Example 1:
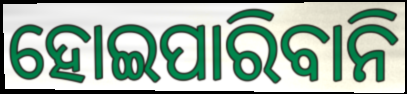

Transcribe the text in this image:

ହୋଇପାରିବାନି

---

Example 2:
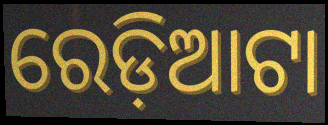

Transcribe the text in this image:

ରେଡ଼ିଆଟା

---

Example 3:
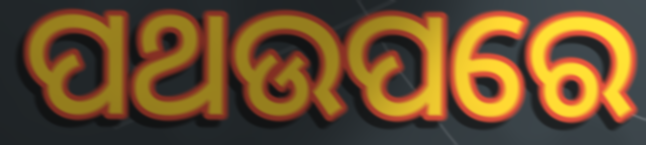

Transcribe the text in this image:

ପଥଉପରେ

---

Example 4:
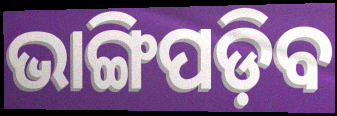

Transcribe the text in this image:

ଭାଙ୍ଗିପଡ଼ିବ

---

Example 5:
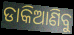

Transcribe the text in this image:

ଡାକିଆଣିବୁ